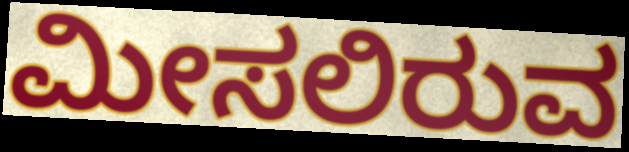
ಮೀಸಲಿರುವ